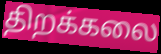
திறக்கலை